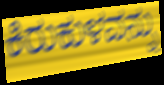
ಕಿರುಕುಳವನ್ನು